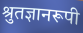
श्रुतज्ञानरूपी